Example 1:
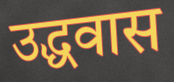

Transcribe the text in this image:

उद्धवास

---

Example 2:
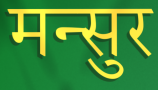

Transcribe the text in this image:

मन्सुर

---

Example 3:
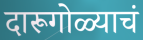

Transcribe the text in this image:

दारूगोळ्याचं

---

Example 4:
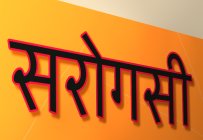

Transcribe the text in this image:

सरोगसी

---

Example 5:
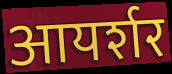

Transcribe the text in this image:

आयर्शर